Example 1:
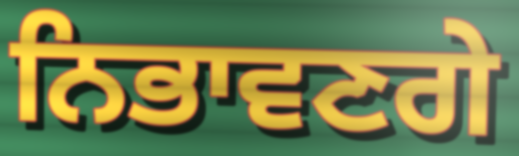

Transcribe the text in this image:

ਨਿਭਾਵਣਗੇ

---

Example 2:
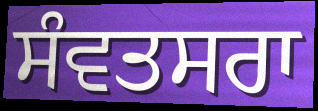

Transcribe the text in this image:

ਸੰਵਤਸਰਾ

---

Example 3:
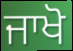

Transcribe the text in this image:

ਜਾਖੋ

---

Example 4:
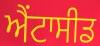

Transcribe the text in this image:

ਐਂਟਾਸੀਡ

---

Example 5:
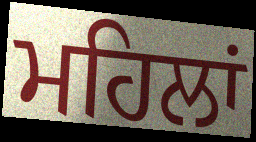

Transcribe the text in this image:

ਮਹਿਲਾਂ